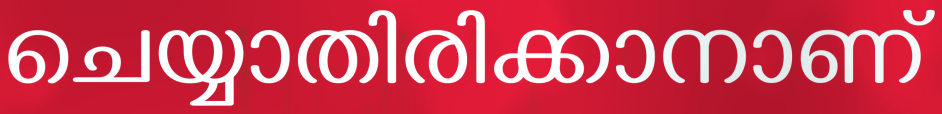
ചെയ്യാതിരിക്കാനാണ്